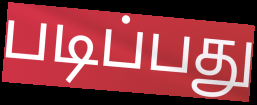
படிப்பது